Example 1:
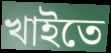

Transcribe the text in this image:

খাইতে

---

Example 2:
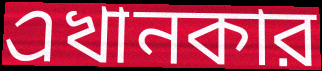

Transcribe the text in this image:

এখানকার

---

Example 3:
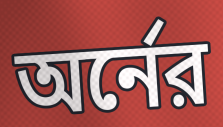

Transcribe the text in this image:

অর্নের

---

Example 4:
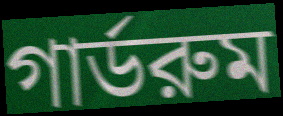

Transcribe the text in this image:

গার্ডরুম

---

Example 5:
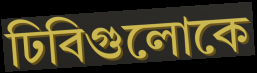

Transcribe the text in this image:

ঢিবিগুলোকে